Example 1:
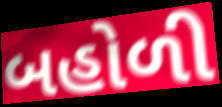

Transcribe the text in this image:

બહોળી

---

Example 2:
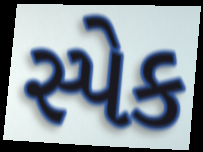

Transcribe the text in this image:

સ્પેક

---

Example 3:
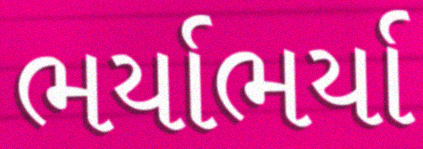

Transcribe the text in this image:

ભર્યાભર્યા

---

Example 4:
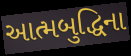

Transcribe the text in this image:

આત્મબુદ્ધિના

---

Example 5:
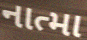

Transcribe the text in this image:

નાત્મા